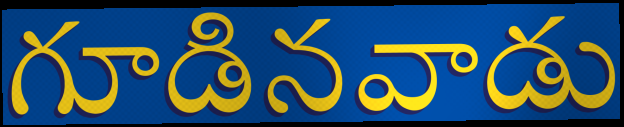
గూడినవాడు